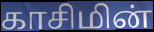
காசிமின்